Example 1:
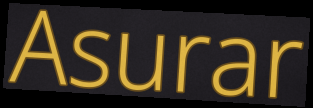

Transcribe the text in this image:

Asurar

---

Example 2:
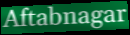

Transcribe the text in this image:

Aftabnagar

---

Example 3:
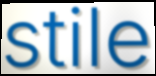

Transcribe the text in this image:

stile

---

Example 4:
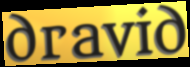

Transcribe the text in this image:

dravid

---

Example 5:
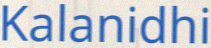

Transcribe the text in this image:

Kalanidhi